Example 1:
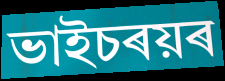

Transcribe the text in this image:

ভাইচৰয়ৰ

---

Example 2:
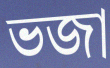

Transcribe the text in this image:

ভজা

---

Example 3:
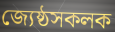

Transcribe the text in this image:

জ্যেষ্ঠসকলক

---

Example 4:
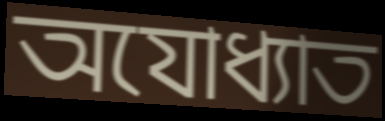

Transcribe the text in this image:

অযোধ্যাত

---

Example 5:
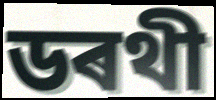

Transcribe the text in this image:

ডৰথী